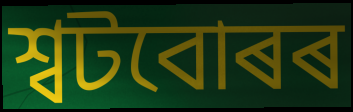
শ্বটবোৰৰ